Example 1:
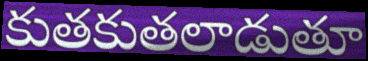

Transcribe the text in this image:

కుతకుతలాడుతూ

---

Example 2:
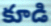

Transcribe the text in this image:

కూడి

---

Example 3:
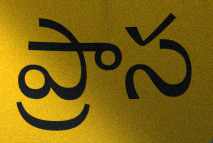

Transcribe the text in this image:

ప్రాస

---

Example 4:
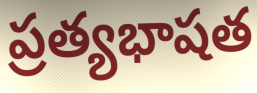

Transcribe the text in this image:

ప్రత్యభాషత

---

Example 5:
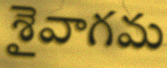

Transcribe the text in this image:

శైవాగమ